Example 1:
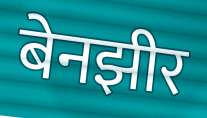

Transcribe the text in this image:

बेनझीर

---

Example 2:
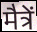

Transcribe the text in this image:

मैत्रें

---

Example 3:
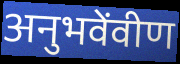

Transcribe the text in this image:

अनुभवेंवीण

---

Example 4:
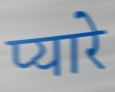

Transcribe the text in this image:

प्यारे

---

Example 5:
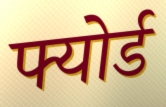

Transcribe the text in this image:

फ्योर्ड